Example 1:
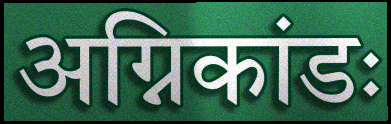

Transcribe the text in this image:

अग्निकांडः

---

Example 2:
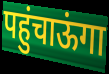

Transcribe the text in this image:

पहुंचाऊंगा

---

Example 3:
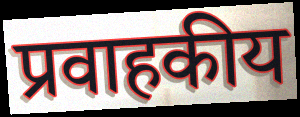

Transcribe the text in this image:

प्रवाहकीय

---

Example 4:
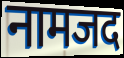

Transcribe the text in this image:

नामजद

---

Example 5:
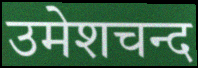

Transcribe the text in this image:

उमेशचन्द